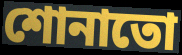
শোনাতো